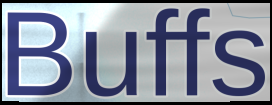
Buffs